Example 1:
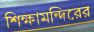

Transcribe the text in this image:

শিক্ষামন্দিরের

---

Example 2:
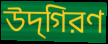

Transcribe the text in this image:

উদ্‌গিরণ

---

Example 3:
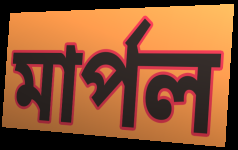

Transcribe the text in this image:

মার্পল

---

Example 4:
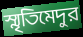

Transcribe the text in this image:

স্মৃতিমেদুর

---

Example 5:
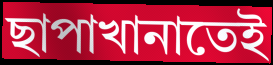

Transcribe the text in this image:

ছাপাখানাতেই